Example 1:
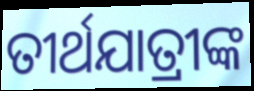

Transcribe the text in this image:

ତୀର୍ଥଯାତ୍ରୀଙ୍କ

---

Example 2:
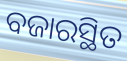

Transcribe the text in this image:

ବଜାରସ୍ଥିତ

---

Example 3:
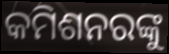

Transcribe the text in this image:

କମିଶନରଙ୍କୁ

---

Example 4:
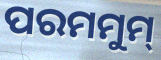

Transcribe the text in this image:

ପରମମୁମ୍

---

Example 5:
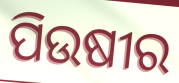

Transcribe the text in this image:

ପିଉଷୀର